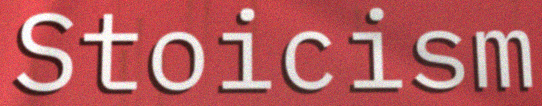
Stoicism